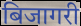
बिजागरी